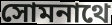
সোমনাথে